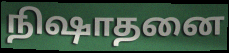
நிஷாதனை